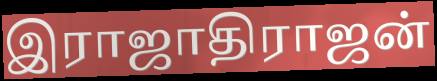
இராஜாதிராஜன்